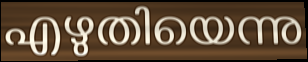
എഴുതിയെന്നു